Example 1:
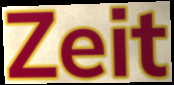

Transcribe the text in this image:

Zeit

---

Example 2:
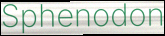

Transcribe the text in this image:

Sphenodon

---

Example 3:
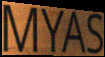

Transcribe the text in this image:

MYAS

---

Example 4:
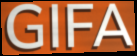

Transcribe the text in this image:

GIFA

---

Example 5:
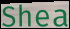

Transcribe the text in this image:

Shea